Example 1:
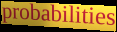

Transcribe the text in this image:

probabilities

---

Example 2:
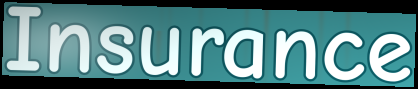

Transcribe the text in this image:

Insurance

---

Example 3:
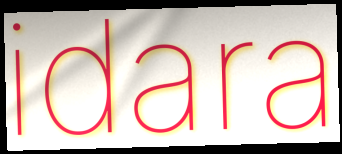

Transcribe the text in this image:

idara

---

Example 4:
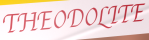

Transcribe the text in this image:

THEODOLITE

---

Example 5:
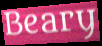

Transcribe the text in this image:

Beary